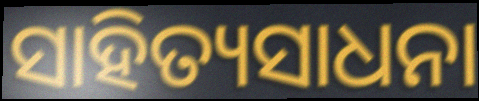
ସାହିତ୍ୟସାଧନା